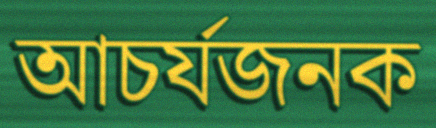
আচৰ্যজনক